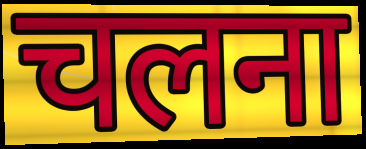
चलना